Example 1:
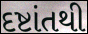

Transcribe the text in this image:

દષ્ટાંતથી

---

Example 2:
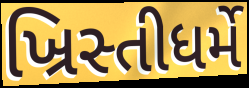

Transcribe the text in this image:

ખ્રિસ્તીધર્મે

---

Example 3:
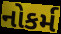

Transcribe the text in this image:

નોકર્મ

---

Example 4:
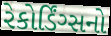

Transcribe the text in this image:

રેકોર્ડિંગ્સનો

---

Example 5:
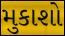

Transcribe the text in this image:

મુકાશો